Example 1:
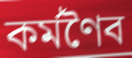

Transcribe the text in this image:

কর্মণৈব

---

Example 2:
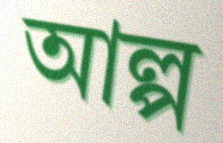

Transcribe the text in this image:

আল্প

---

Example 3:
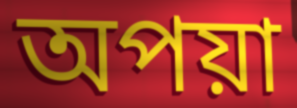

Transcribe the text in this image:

অপয়া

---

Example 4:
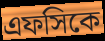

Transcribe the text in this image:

এফসিকে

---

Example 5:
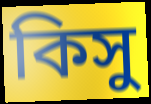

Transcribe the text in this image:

কিসু